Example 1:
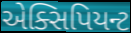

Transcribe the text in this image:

એક્સિપિયન્ટ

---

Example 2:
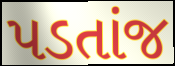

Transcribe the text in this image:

પડતાંજ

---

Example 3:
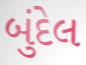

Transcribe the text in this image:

બુંદેલ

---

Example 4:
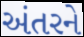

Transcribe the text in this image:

અંતરને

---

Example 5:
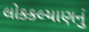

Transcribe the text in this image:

લોકકલ્યાણનું